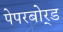
पेपरबोर्ड